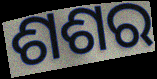
ଶଶର